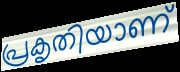
പ്രകൃതിയാണ്